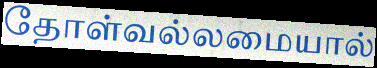
தோள்வல்லமையால்